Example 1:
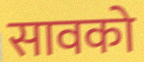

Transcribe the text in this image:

सावको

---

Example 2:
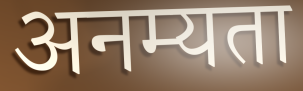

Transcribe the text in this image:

अनम्यता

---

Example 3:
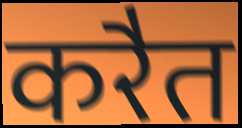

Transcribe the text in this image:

करैत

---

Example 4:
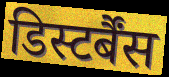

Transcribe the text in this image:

डिस्टर्बैंस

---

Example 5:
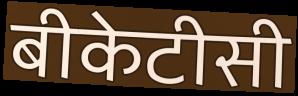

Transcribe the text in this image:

बीकेटीसी